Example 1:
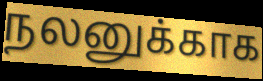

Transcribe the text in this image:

நலனுக்காக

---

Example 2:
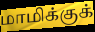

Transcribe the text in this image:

மாமிக்குக்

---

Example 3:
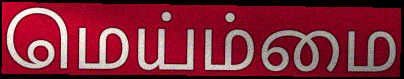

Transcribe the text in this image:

மெய்ம்மை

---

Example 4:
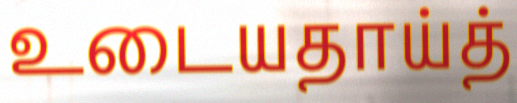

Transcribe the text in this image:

உடையதாய்த்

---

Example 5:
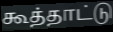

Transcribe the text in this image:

கூத்தாட்டு